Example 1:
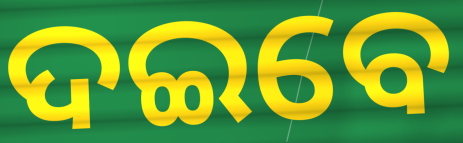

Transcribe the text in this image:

ଦଇବେ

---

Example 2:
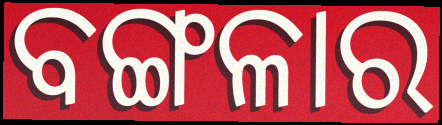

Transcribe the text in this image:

ବଙ୍ଗଳାର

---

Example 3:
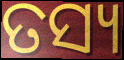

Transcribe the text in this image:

ତସ୍ୟ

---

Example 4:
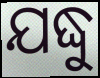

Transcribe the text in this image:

ଯଦ୍ଧୁ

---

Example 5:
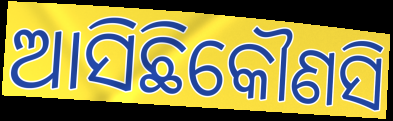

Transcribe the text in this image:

ଆସିଛିକୌଣସି